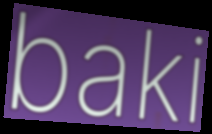
baki